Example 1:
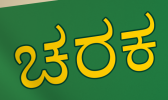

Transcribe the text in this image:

ಚರಕ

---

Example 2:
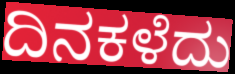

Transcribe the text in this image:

ದಿನಕಳೆದು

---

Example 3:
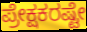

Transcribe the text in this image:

ಪ್ರೇಕ್ಷಕರಷ್ಟೇ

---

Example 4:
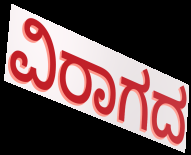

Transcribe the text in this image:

ವಿರಾಗದ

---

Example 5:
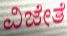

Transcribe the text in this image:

ವಿಜೇತೆ